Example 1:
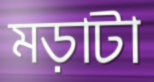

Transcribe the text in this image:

মড়াটা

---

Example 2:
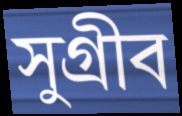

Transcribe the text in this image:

সুগ্রীব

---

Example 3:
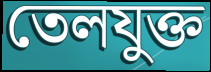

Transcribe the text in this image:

তেলযুক্ত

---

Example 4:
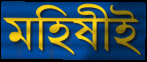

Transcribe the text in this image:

মহিষীই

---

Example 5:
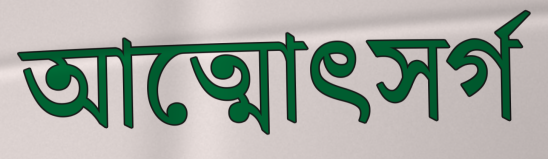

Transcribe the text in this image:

আত্মোৎসর্গ